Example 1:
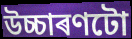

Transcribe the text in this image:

উচ্চাৰণটো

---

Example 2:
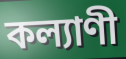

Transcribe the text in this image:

কল্যাণী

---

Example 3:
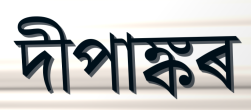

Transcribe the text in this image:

দীপাঙ্কৰ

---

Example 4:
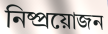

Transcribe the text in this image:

নিষ্প্ৰয়োজন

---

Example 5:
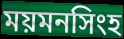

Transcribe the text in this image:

ময়মনসিংহ